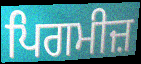
ਪਿਗਮੀਜ਼